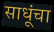
साधूंचा